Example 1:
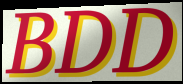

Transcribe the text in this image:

BDD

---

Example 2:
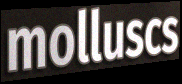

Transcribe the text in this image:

molluscs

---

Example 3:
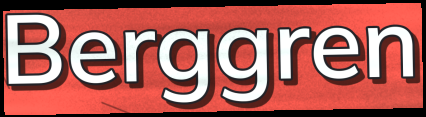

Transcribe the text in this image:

Berggren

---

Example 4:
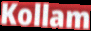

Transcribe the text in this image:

Kollam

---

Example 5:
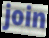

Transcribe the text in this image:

join